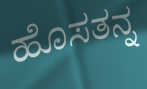
ಹೊಸತನ್ನ